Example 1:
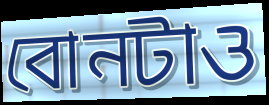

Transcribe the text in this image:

বোনটাও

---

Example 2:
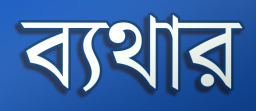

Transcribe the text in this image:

ব্যথার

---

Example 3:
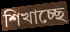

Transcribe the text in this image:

শিখাচ্ছে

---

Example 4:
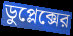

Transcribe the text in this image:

ডুপ্লেক্সের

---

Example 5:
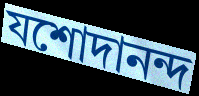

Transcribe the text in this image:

যশোদানন্দ